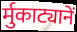
र्मुकाट्यानें